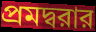
প্রমদ্বরার